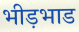
भीड़भाड